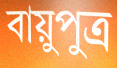
বায়ুপুত্র